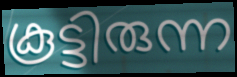
കൂട്ടിരുന്ന